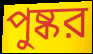
পুষ্কর